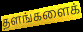
தளங்களைக்